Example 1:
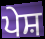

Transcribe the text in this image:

ਪੇਸ਼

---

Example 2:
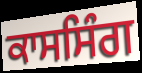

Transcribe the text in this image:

ਕਾਸਸਿੰਗ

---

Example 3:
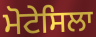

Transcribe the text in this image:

ਮੋਟੇਸਿਲਾ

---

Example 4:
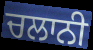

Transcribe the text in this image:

ਚਲਾਨੀ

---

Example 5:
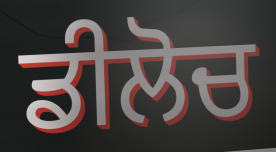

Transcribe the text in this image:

ਡੀਲੋਚ